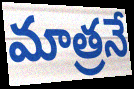
మాత్రనే